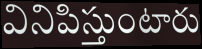
వినిపిస్తుంటారు